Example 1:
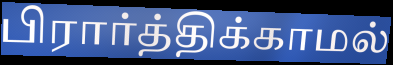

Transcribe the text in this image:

பிரார்த்திக்காமல்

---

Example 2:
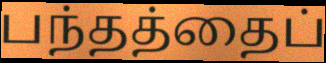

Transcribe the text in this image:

பந்தத்தைப்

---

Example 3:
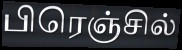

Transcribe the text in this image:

பிரெஞ்சில்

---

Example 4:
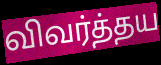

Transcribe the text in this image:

விவர்த்தய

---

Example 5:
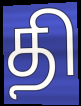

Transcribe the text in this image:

தி